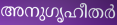
അനുഗൃഹീതർ